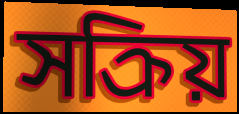
সক্রিয়